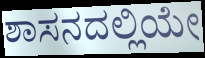
ಶಾಸನದಲ್ಲಿಯೇ